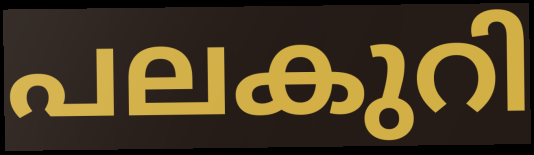
പലകുറി